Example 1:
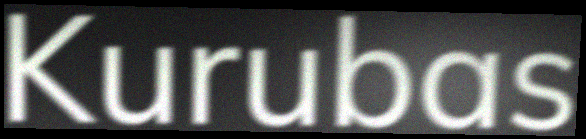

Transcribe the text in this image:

Kurubas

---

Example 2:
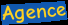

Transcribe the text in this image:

Agence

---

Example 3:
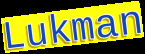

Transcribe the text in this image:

Lukman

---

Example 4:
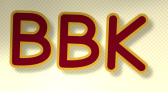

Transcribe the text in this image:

BBK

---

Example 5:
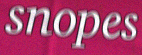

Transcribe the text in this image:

snopes